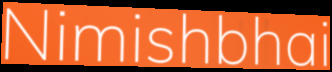
Nimishbhai